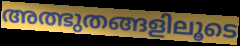
അത്ഭുതങ്ങളിലൂടെ